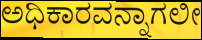
ಅಧಿಕಾರವನ್ನಾಗಲೀ